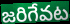
జరిగేవట